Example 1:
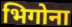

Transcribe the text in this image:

भिगोना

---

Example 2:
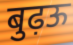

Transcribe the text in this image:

बुढ़ऊ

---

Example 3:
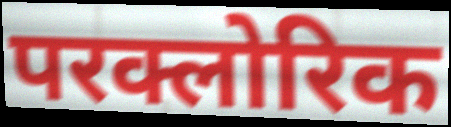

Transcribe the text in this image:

परक्लोरिक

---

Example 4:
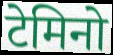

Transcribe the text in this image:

टेमिनो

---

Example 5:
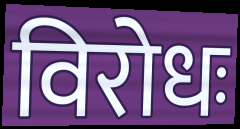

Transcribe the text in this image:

विरोधः